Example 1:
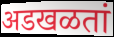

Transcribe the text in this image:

अडखळतां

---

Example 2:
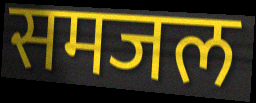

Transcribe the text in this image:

समजल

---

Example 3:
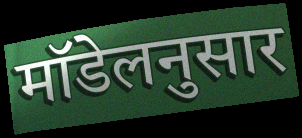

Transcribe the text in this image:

मॉडेलनुसार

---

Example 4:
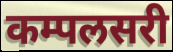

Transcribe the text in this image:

कम्पलसरी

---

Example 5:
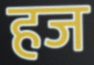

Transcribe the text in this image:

हज